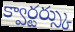
క్వార్టర్స్కు